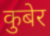
कुबेर